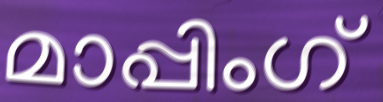
മാപ്പിംഗ്